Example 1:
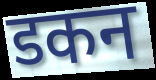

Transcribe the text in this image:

डकन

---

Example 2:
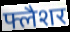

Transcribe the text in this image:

फ्लैशर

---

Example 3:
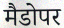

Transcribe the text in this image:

मैडोपर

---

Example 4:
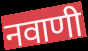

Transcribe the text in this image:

नवाणी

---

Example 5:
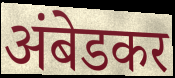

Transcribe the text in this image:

अंबेडकर